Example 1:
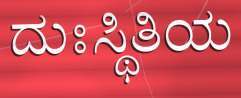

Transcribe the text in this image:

ದುಃಸ್ಥಿತಿಯ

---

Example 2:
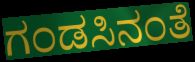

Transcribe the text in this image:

ಗಂಡಸಿನಂತೆ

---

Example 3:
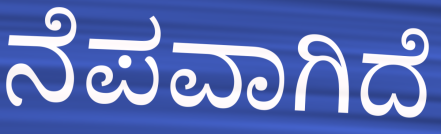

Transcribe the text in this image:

ನೆಪವಾಗಿದೆ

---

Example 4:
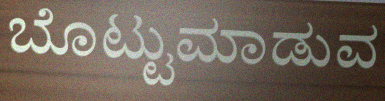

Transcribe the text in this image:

ಬೊಟ್ಟುಮಾಡುವ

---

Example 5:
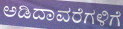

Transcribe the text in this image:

ಅಡಿದಾವರೆಗಳಿಗೆ